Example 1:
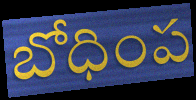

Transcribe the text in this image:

బోధింప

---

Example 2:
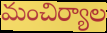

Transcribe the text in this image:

మంచిర్యాల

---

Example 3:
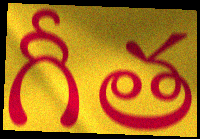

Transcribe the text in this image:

గీత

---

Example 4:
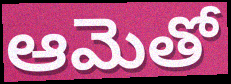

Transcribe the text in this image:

ఆమెతో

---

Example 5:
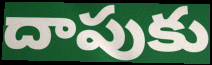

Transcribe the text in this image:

దాపుకు